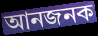
আনজনক